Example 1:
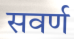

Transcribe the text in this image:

सवर्ण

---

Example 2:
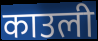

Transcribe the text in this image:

काउली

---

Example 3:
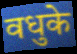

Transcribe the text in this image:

वधुके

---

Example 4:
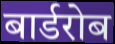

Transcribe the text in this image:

बार्डरोब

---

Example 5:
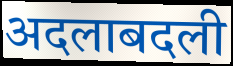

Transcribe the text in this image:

अदलाबदली